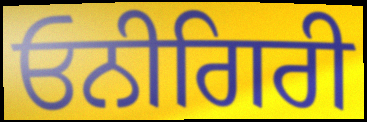
ਓਨੀਗਿਰੀ